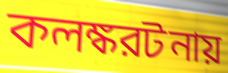
কলঙ্করটনায়